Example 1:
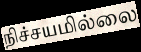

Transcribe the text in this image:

நிச்சயமில்லை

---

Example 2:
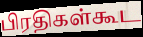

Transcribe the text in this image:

பிரதிகள்கூட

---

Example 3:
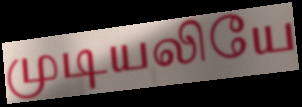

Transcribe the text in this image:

முடியலியே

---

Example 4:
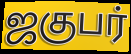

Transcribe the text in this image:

ஜகுபர்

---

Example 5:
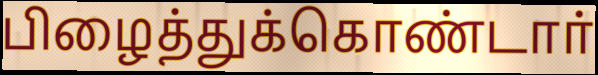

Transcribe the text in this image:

பிழைத்துக்கொண்டார்